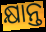
କ୍ଷାନ୍ତ